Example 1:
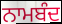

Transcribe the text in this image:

ਨਾਮਬੰਦ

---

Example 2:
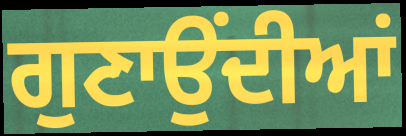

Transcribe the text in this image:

ਗੁਣਾਉਂਦੀਆਂ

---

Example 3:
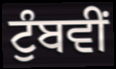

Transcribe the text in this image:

ਟੁੰਬਵੀਂ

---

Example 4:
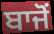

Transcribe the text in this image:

ਬਾਜੋਂ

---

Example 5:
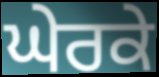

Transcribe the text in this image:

ਘੇਰਕੇ